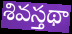
శివస్తథా